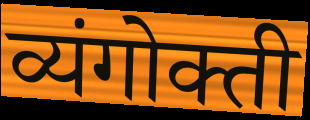
व्यंगोक्ती